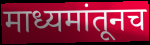
माध्यमांतूनच